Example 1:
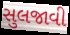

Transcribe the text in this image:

સુલજાવી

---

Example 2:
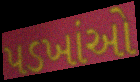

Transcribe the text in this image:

પડખાંઓ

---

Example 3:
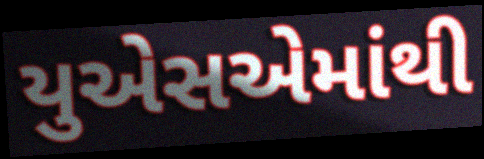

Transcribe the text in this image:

યુએસએમાંથી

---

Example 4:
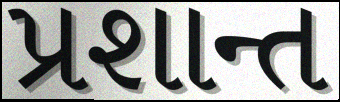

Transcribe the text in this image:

પ્રશાન્ત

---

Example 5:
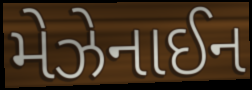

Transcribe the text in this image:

મેઝેનાઈન